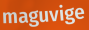
maguvige